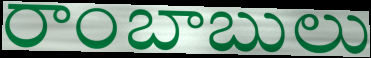
రాంబాబులు